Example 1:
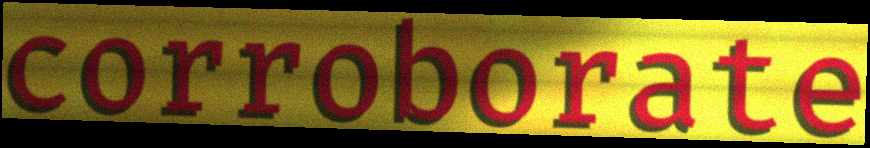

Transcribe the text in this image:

corroborate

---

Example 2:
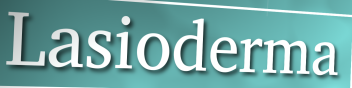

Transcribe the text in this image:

Lasioderma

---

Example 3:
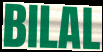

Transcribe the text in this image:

BILAL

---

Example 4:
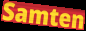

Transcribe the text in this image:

Samten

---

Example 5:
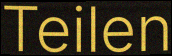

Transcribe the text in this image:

Teilen